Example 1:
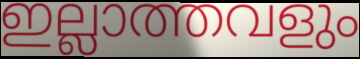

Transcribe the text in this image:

ഇല്ലാത്തവളും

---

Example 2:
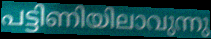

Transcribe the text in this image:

പട്ടിണിയിലാവുന്നു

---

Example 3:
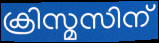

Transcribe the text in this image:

ക്രിസ്മസിന്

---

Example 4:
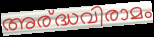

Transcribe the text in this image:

അര്ദ്ധവിരാമം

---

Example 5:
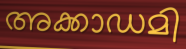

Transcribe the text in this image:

അക്കാഡമി